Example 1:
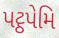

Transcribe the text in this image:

પટ્ઠપેમિ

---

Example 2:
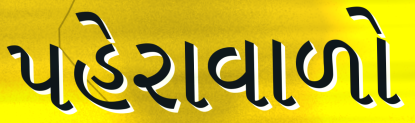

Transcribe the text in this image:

પહેરાવાળો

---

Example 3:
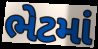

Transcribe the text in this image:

ભેટમાં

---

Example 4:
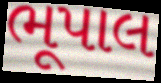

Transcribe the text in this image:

ભૂપાલ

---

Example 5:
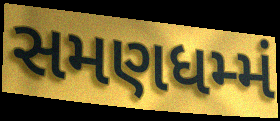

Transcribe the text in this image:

સમણધમ્મં